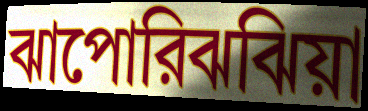
ঝাপোরিঝঝিয়া